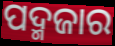
ପଦ୍ମଜାର